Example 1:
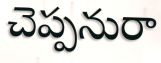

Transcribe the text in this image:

చెప్పనురా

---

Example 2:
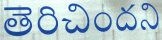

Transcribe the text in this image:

తెరిచిందని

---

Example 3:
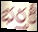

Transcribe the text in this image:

భర్తకీ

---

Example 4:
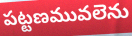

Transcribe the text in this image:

పట్టణమువలెను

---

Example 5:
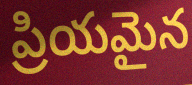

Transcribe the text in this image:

ప్రియమైన